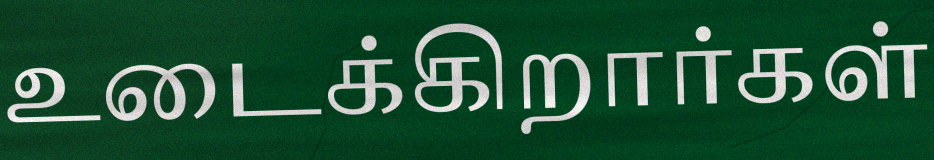
உடைக்கிறார்கள்